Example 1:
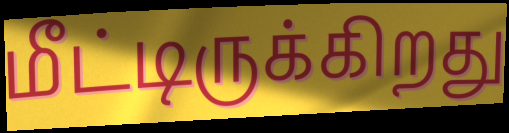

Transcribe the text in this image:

மீட்டிருக்கிறது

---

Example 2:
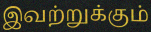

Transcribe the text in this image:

இவற்றுக்கும்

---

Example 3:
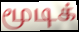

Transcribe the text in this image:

மூடிக்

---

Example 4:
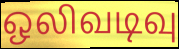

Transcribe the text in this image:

ஒலிவடிவு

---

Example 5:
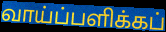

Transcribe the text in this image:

வாய்ப்பளிக்கப்